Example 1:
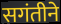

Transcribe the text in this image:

सगंतीने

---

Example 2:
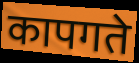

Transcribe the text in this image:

कापगते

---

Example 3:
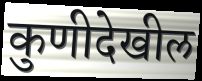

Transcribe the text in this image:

कुणीदेखील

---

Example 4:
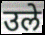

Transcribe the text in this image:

उले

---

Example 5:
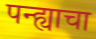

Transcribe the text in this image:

पन्ह्याचा